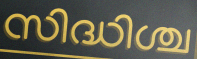
സിദ്ധിശ്ച